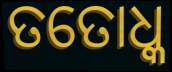
ତତୋଧ୍କ